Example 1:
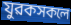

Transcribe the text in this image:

যুৱকসকলে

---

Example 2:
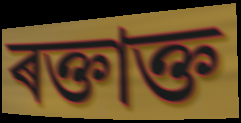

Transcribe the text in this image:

ৰক্তাক্ত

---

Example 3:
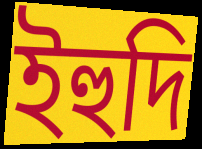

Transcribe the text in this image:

ইহুদি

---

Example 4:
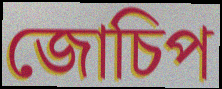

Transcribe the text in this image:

জোচিপ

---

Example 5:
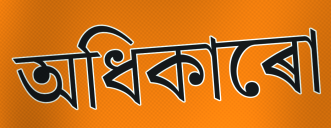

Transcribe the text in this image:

অধিকাৰো